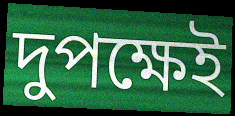
দুপক্ষেই